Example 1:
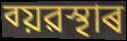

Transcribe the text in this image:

ব্য়ৱস্থাৰ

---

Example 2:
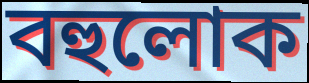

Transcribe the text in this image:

বহুলোক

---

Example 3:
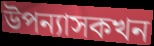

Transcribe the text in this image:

উপন্যাসকখন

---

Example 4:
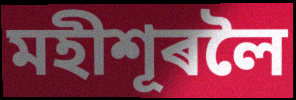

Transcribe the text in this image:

মহীশূৰলৈ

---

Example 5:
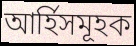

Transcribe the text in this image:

আৰ্হিসমূহক